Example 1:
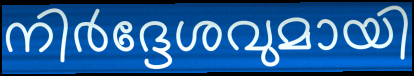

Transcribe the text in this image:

നിർദ്ദേശവുമായി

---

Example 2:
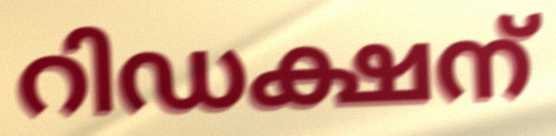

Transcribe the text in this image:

റിഡക്ഷന്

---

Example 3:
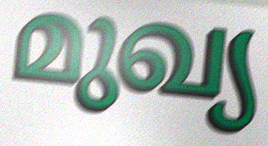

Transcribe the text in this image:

മുഖ്യ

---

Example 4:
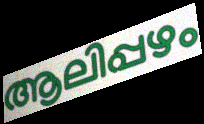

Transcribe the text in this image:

ആലിപ്പഴം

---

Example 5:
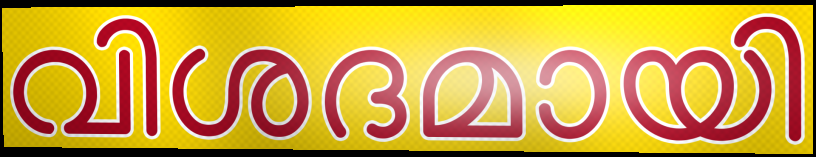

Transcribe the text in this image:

വിശദമായി